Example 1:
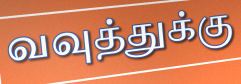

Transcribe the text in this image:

வவுத்துக்கு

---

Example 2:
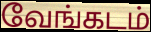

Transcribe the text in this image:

வேங்கடம்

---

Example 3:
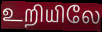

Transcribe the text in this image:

உறியிலே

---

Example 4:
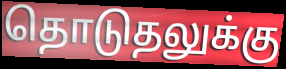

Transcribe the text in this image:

தொடுதலுக்கு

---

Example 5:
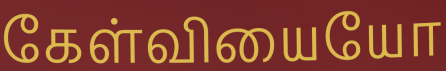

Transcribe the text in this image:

கேள்வியையோ